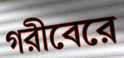
গরীবেরে